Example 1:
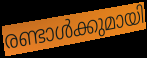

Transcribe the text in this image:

രണ്ടാൾക്കുമായി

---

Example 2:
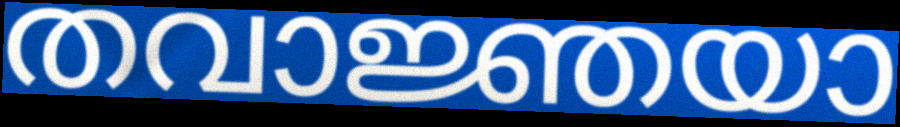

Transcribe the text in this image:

തവാജ്ഞയാ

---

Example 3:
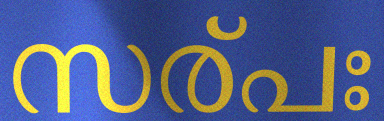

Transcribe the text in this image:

സര്പഃ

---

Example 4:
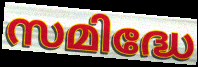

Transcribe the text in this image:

സമിദ്ധേ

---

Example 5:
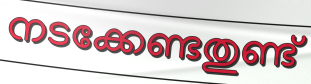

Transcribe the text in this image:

നടക്കേണ്ടതുണ്ട്